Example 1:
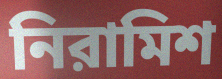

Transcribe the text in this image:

নিরামিশ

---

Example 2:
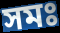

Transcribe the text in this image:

সমঃ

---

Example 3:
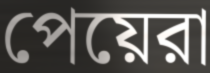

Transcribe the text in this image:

পেয়েরা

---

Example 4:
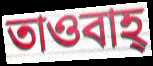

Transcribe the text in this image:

তাওবাহ্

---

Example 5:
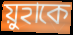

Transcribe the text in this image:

য়ুহাকে